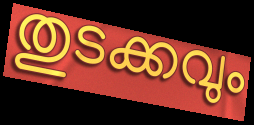
തുടക്കവും